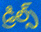
డ్రిల్స్